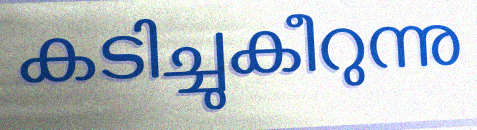
കടിച്ചുകീറുന്നു